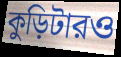
কুড়িটারও